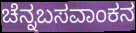
ಚೆನ್ನಬಸವಾಂಕನ